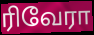
ரிவேரா